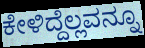
ಕೇಳಿದ್ದೆಲ್ಲವನ್ನೂ